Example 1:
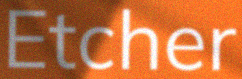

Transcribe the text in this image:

Etcher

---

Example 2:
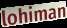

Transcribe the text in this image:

lohiman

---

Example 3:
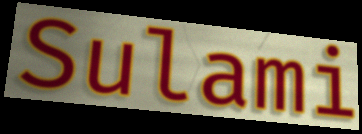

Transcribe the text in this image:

Sulami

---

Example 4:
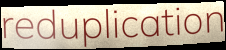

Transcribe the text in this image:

reduplication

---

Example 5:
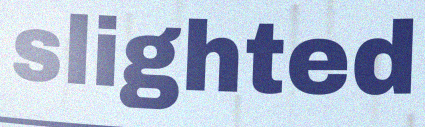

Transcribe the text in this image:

slighted